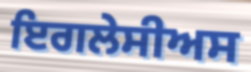
ਇਗਲੇਸੀਅਸ